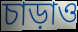
চাড়াও